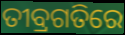
ତୀବ୍ରଗତିରେ